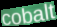
cobalt